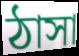
ঠাসা